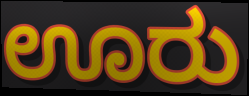
ಊರು